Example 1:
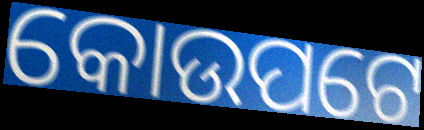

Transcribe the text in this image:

କୋଉପଟେ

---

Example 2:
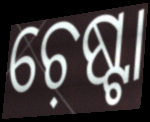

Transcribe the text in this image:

ଚ଼େଷ୍ଟା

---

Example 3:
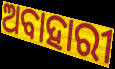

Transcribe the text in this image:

ଅବାହାରୀ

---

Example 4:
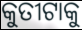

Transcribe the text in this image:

କୁତୀଟାକୁ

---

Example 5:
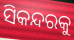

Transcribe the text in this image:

ସିକନ୍ଦରକୁ